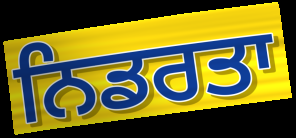
ਨਿਡਰਤਾ